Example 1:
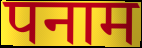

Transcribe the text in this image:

पनाम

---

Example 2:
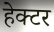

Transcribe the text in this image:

हेक्टर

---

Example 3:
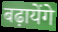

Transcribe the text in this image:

बढ़ायेंगे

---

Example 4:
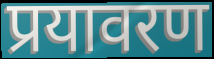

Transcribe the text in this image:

प्रयावरण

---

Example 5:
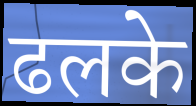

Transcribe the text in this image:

ढलके